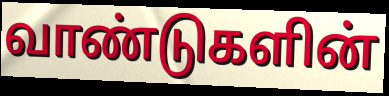
வாண்டுகளின்